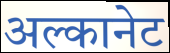
अल्कानेट